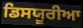
ਡਿਸਯੂਰੀਆ